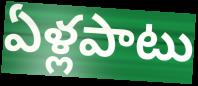
ఏళ్లపాటు